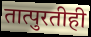
तात्पुरतीही